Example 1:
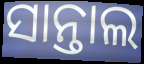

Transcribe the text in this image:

ସାନ୍ତାଲ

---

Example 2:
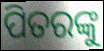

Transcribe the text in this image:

ପିତରଙ୍କୁ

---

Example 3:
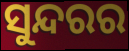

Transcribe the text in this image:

ସୁନ୍ଦରର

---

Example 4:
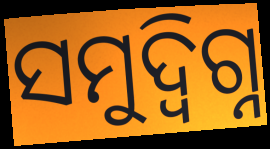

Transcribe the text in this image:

ସମୁଦ୍ବିଗ୍ନ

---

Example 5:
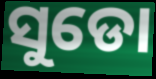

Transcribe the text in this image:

ସୁଡୋ